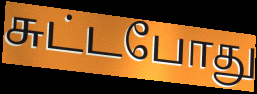
சுட்டபோது